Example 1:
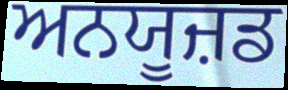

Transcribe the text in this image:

ਅਨਯੂਜ਼ਡ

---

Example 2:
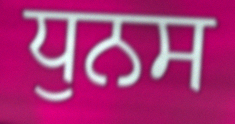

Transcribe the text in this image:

ਧੁਨਸ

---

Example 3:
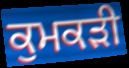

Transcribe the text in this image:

ਕੁਮਕੜੀ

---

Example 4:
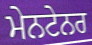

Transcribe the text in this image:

ਮੇਨਟੇਨਰ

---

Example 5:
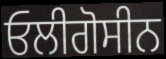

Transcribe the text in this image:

ਓਲੀਗੋਸੀਨ